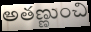
అతణ్ణుంచి